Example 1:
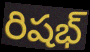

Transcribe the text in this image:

రిషభ్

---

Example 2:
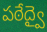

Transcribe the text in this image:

పఠేద్వై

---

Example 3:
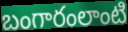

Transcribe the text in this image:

బంగారంలాంటి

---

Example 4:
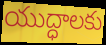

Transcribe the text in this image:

యుద్ధాలకు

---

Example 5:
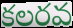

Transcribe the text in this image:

కలరవ